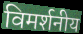
विमर्शनीय